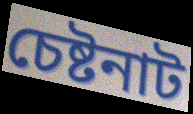
চেষ্টনাট